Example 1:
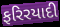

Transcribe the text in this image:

ફરિરયાદી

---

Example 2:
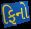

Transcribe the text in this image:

ફિનો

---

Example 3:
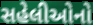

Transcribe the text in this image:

સહેલીઓનો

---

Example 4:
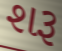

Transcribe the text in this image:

શરૂ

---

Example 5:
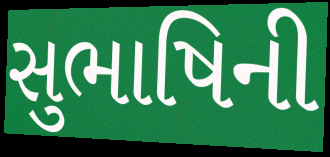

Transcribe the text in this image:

સુભાષિની